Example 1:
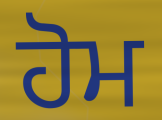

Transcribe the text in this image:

ਹੋਮ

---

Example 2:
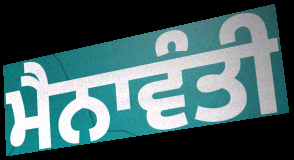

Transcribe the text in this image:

ਮੈਨਾਵੰਤੀ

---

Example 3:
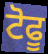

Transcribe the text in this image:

ਟੋਫੂ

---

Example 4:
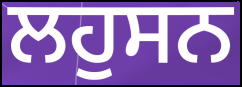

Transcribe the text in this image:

ਲਹੁਸਨ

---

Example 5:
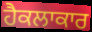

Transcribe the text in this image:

ਹੈਕਲਾਕਾਰ